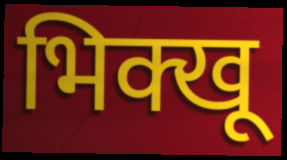
भिक्‍खू